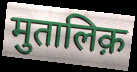
मुतालिक़